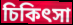
চিকিৎসা